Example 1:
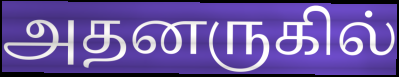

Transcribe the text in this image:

அதனருகில்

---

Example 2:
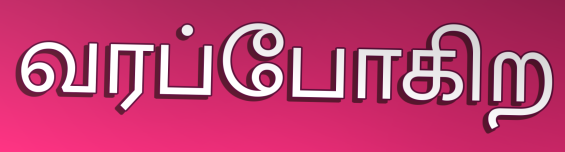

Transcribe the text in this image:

வரப்போகிற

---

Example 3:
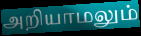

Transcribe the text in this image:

அறியாமலும்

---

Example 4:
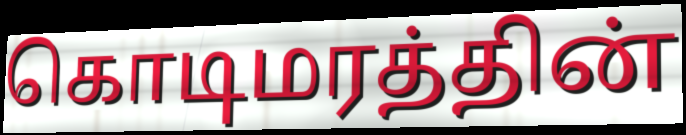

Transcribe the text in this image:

கொடிமரத்தின்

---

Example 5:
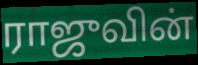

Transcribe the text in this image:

ராஜுவின்